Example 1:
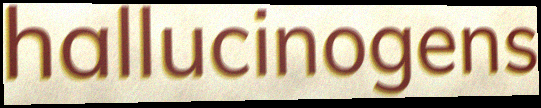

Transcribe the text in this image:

hallucinogens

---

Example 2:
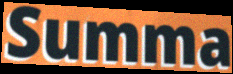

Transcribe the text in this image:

Summa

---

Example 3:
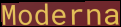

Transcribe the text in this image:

Moderna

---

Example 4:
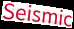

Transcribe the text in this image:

Seismic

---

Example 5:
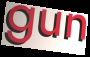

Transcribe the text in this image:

gun